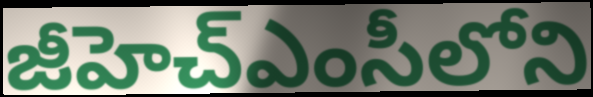
జీహెచ్ఎంసీలోని